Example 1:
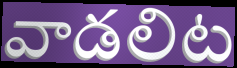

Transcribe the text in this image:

వాడలిట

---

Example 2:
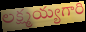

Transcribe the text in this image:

లక్ష్మయ్యగారి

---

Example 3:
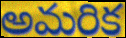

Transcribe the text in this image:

అమరిక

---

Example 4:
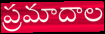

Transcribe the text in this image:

ప్రమాదాల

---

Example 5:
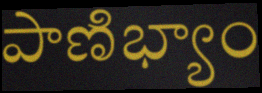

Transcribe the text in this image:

పాణిభ్యాం